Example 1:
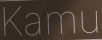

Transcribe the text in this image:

Kamu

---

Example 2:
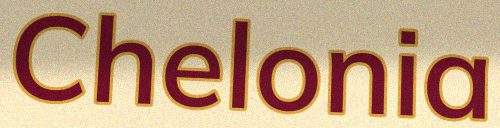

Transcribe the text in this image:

Chelonia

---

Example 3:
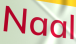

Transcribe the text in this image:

Naal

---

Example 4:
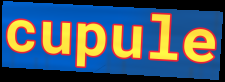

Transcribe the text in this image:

cupule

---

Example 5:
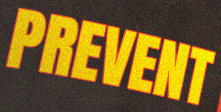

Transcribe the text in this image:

PREVENT